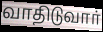
வாதிடுவார்